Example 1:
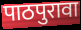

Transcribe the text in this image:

पाठपुरावा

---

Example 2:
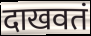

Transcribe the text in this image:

दाखवतं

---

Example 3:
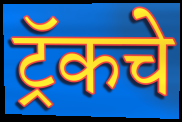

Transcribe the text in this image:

ट्रॅकचे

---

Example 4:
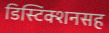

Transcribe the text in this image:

डिस्टिंक्शनसह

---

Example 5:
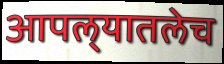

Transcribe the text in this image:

आपल्यातलेच